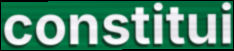
constitui